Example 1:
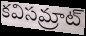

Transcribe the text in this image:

కవిసమ్రాట్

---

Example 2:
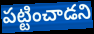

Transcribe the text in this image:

పట్టించాడని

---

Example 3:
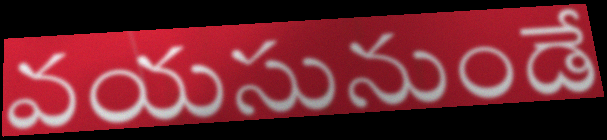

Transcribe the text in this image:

వయసునుండే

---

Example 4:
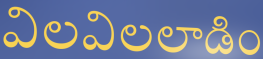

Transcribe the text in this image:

విలవిలలాడిం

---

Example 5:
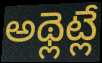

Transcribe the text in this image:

అథ్లెట్లే